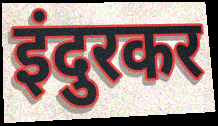
इंदुरकर